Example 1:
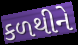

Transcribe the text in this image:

કળથીને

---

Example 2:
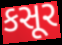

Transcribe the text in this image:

કસૂર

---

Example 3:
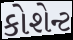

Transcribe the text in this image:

કોશેન્ટ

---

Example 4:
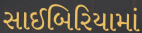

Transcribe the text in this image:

સાઈબિરિયામાં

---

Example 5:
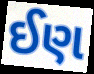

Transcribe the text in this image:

ઈણ